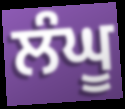
ਲੰਘੂ